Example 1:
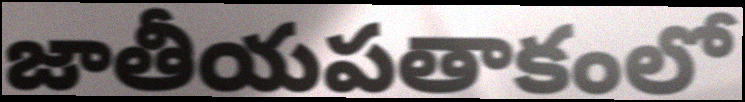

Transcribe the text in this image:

జాతీయపతాకంలో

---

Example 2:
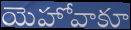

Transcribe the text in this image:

యెహోవాకూ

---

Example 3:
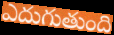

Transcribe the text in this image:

ఎదుగుతుంది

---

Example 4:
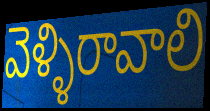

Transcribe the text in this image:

వెళ్ళిరావాలి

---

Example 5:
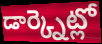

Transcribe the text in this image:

డార్క్నెట్లో